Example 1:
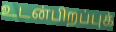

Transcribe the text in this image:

உடன்பிறப்புக்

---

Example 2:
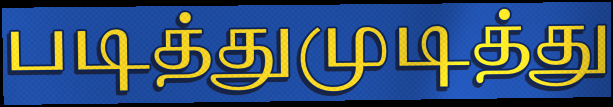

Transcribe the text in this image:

படித்துமுடித்து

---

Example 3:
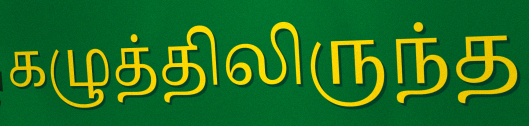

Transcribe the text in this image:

கழுத்திலிருந்த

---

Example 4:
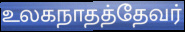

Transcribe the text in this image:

உலகநாதத்தேவர்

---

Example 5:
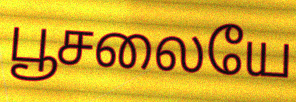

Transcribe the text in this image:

பூசலையே